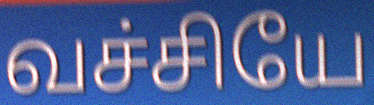
வச்சியே